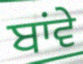
ਬਾਂਵੇ